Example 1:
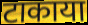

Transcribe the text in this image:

टाकाया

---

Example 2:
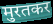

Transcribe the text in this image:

मुरतकर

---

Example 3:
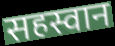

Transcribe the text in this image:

सहस्वान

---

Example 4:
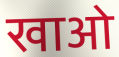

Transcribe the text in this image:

खाओ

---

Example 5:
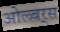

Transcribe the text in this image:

ओल्बर्स